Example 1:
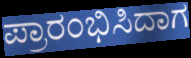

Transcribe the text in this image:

ಪ್ರಾರಂಭಿಸಿದಾಗ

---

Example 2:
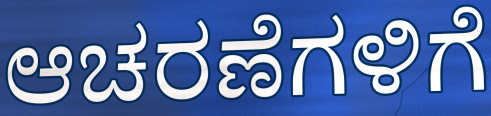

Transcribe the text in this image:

ಆಚರಣೆಗಳಿಗೆ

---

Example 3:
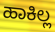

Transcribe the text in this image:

ಹಾಕಿಲ್ಲ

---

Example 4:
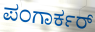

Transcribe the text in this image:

ಪಂಗಾರ್ಕರ್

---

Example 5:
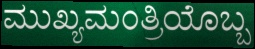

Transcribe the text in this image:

ಮುಖ್ಯಮಂತ್ರಿಯೊಬ್ಬ